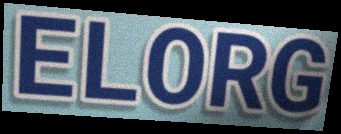
ELORG